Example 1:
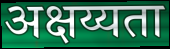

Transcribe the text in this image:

अक्षय्यता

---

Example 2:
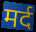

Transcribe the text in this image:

मर्द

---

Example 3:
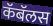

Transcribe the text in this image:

कॅबॅलस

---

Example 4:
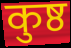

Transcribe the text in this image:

कुष्ठ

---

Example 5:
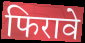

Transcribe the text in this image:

फिरावे